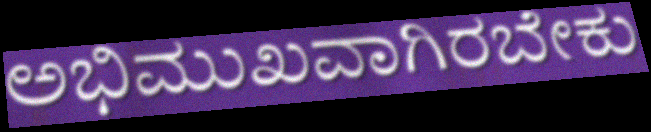
ಅಭಿಮುಖವಾಗಿರಬೇಕು